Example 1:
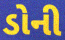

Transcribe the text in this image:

ડોની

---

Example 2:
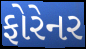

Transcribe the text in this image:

ફોરેનર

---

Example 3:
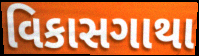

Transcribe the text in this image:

વિકાસગાથા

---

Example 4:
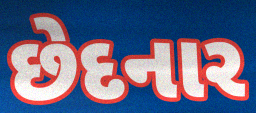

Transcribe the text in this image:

છેદનાર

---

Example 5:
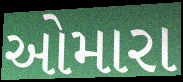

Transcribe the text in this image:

ઓમારા